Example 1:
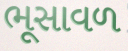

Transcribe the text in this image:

ભૂસાવળ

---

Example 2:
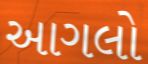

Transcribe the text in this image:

આગલો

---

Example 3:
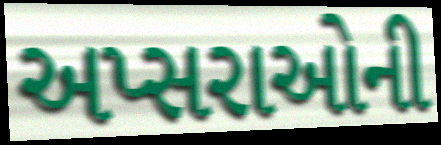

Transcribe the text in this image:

અપ્સરાઓની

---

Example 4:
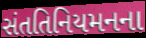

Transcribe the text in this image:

સંતતિનિયમનના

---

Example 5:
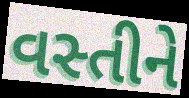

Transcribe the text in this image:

વસ્તીને